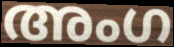
അംഗ